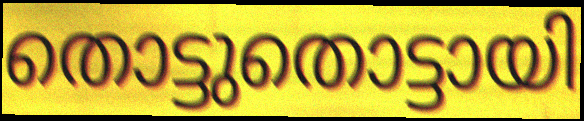
തൊട്ടുതൊട്ടായി